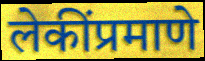
लेकींप्रमाणे